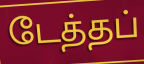
டேத்தப்